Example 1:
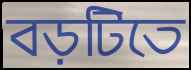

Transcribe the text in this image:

বড়টিতে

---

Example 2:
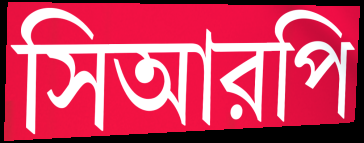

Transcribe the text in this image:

সিআরপি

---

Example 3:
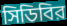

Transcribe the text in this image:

সিডিবির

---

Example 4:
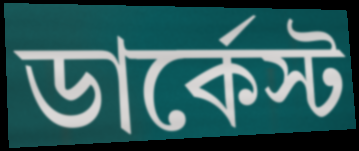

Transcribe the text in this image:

ডার্কেস্ট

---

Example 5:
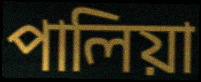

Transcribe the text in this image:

পালিয়া